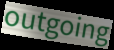
outgoing